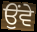
ਉੰਵੇ